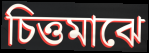
চিত্তমাঝে